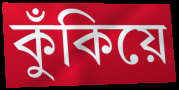
কুঁকিয়ে